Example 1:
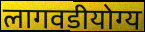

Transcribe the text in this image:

लागवडीयोग्य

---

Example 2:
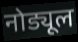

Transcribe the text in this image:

नोड्यूल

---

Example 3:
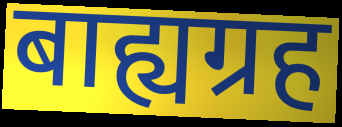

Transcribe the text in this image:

बाह्यग्रह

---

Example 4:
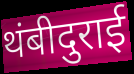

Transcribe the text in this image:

थंबीदुराई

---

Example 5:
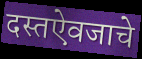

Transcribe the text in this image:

दस्तऐवजाचे